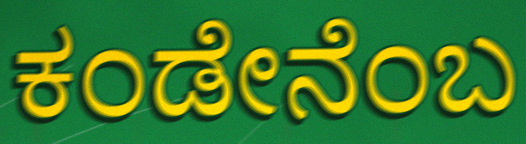
ಕಂಡೇನೆಂಬ